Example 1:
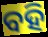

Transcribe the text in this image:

ବହି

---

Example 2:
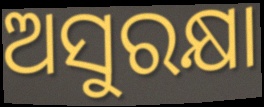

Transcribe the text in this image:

ଅସୁରକ୍ଷା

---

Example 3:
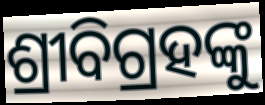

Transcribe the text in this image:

ଶ୍ରୀବିଗ୍ରହଙ୍କୁ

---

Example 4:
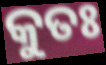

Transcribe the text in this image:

କୁତଃ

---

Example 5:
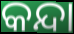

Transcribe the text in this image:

କନ୍ଦା